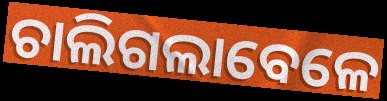
ଚାଲିଗଲାବେଳେ